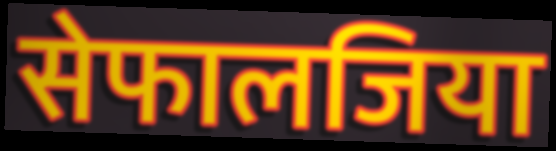
सेफालजिया